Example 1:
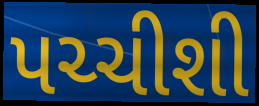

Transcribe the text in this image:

પચ્ચીશી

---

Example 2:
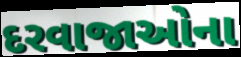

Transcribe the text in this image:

દરવાજાઓના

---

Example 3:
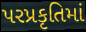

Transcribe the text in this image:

પરપ્રકૃતિમાં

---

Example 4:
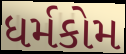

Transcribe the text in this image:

ધર્મકોમ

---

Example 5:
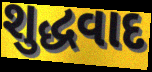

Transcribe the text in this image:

શુદ્ધવાદ